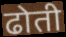
ढोती